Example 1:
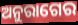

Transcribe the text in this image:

ଅନୁରାଗେର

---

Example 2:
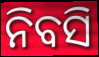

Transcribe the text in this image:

ନିବସି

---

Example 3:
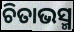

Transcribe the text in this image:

ଚିତାଭସ୍ମ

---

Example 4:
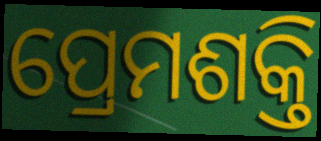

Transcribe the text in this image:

ପ୍ରେମଶକ୍ତି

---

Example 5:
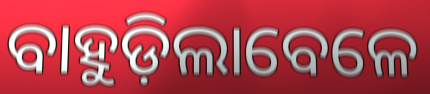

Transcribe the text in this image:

ବାହୁଡ଼ିଲାବେଳେ